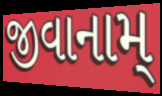
જીવાનામ્